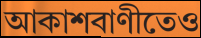
আকাশবাণীতেও